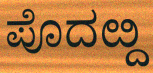
ಪೊದೞ್ದ